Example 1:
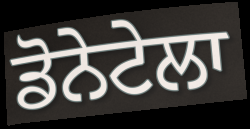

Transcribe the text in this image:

ਡੋਨੇਟੇਲਾ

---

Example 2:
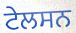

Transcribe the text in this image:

ਟੇਲਸਨ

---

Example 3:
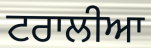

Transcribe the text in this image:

ਟਰਾਲੀਆ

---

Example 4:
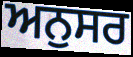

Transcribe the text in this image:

ਅਨੁਸਰ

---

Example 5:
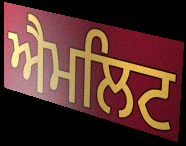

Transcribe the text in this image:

ਐਮਲਿਟ